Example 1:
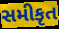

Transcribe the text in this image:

સમીકૃત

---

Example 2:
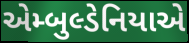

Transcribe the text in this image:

એમ્બુલ્ડેનિયાએ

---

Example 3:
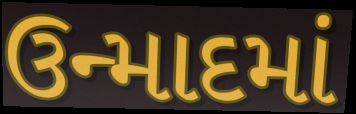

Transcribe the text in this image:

ઉન્માદમાં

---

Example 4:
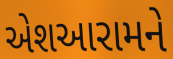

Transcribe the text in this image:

એશઆરામને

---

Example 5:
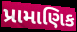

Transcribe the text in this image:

પ્રામાણિક